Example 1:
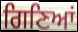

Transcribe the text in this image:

ਗਿਣਿਆਂ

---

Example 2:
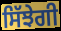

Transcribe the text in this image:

ਸਿੱਝੇਗੀ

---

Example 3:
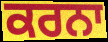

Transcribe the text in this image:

ਕਰਨਾ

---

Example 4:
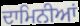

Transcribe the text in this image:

ਦਾਮਿਨੀਆਂ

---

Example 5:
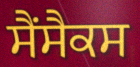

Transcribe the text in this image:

ਸੈਂਸੈਕਸ